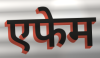
एफेम